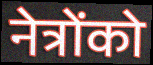
नेत्रोंको